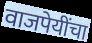
वाजपेयींचा